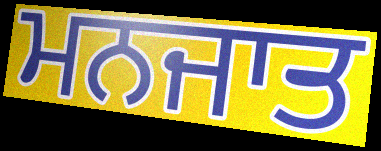
ਮਨਜਾਤ